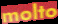
molto